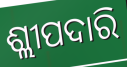
ଶ୍ଲୀପଦାରି